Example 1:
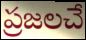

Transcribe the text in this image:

ప్రజలచే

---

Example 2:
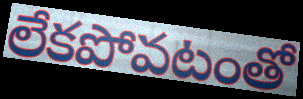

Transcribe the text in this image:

లేకపోవటంతో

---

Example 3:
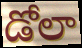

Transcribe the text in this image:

డోలా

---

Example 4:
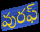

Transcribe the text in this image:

వురఫ్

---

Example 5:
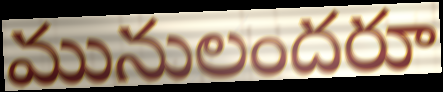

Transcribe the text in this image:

మునులందరూ